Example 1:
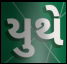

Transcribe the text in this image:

યુથે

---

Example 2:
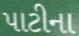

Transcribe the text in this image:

પાટીના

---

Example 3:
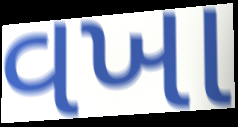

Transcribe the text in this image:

વખા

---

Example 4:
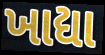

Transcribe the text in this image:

ખાદ્યા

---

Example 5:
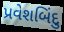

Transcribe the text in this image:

પ્રવેશબિંદુ